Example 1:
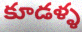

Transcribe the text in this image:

కూడళ్ళ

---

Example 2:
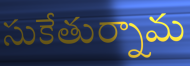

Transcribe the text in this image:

సుకేతుర్నామ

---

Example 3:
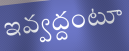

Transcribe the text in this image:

ఇవ్వద్దంటూ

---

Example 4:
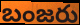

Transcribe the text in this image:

బంజరు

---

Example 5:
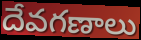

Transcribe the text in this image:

దేవగణాలు